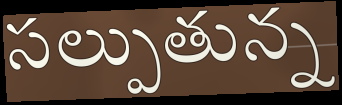
సల్పుతున్న